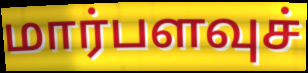
மார்பளவுச்